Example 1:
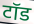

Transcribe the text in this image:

टॉड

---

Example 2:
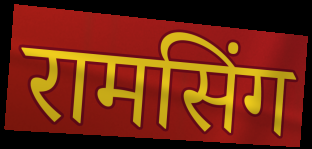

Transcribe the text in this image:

रामसिंग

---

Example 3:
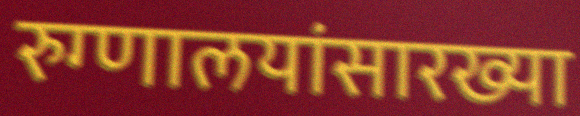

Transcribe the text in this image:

रुग्णालयांसारख्या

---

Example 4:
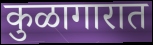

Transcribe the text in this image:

कुळागारात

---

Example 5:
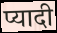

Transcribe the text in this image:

प्यादी